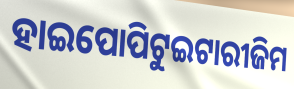
ହାଇପୋପିଟୁଇଟାରୀଜିମ